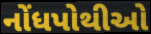
નોંધપોથીઓ